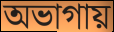
অভাগায়